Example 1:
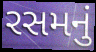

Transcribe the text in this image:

રસમનું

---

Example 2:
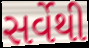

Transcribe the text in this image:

સર્વેથી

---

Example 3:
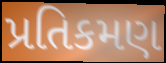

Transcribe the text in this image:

પ્રતિકમણ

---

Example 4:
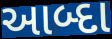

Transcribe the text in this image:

આબ્દા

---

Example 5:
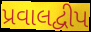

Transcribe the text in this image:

પ્રવાલદ્વીપ